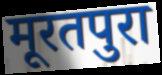
मूरतपुरा